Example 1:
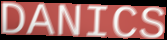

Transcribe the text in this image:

DANICS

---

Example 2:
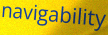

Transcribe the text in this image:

navigability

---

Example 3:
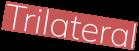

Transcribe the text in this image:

Trilateral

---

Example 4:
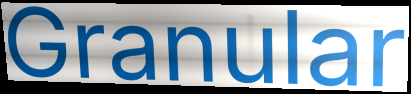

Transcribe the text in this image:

Granular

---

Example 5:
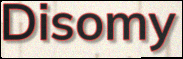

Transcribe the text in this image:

Disomy